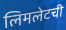
लिमलेटची